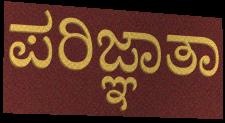
ಪರಿಜ್ಞಾತಾ